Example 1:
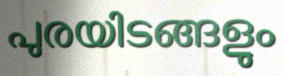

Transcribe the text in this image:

പുരയിടങ്ങളും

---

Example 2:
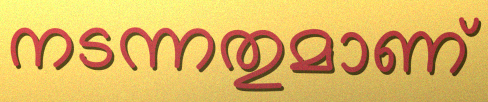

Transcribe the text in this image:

നടന്നതുമാണ്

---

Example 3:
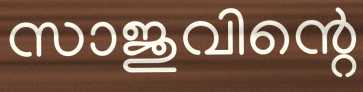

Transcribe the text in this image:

സാജുവിന്റെ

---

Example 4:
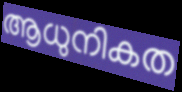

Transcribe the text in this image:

ആധുനികത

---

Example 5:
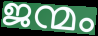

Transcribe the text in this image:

ജന്മം